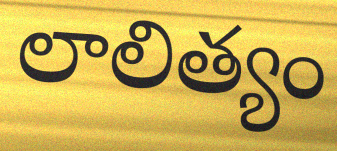
లాలిత్యం